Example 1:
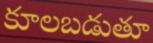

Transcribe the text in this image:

కూలబడుతూ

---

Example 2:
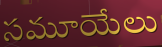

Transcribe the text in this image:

సమూయేలు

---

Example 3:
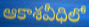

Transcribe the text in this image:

ఆకాశవీధిలో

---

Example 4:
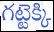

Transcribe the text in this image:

గట్టెక్కి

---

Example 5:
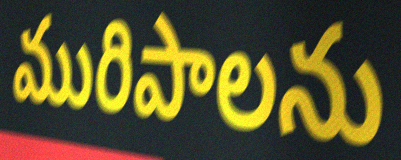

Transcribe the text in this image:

మురిపాలను